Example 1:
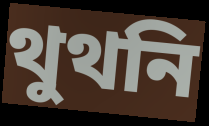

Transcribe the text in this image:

থুথনি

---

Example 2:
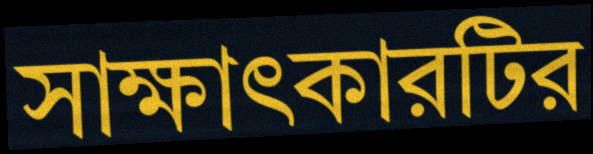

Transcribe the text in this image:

সাক্ষাৎকারটির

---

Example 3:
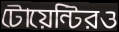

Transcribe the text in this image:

টোয়েন্টিরও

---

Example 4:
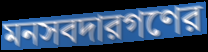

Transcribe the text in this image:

মনসবদারগণের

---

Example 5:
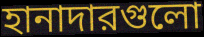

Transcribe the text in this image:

হানাদারগুলো